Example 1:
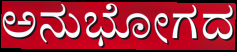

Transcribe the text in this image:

ಅನುಭೋಗದ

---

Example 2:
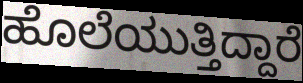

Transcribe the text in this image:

ಹೊಲೆಯುತ್ತಿದ್ದಾರೆ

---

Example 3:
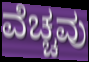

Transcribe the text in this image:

ವೆಚ್ಚವು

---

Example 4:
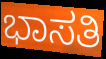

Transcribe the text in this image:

ಭಾಸತಿ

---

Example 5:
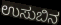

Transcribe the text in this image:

ಉಸುಬಿನ